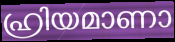
ഹ്രിയമാണാ